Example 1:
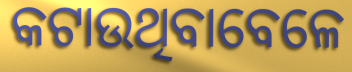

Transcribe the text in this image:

କଟାଉଥିବାବେଳେ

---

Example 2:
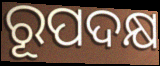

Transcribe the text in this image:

ରୂପଦକ୍ଷ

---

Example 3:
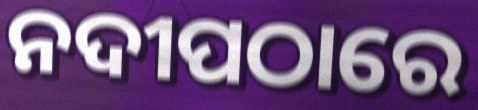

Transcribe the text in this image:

ନଦୀପଠାରେ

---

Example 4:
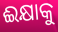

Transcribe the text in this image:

ଈକ୍ଷାକୁ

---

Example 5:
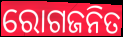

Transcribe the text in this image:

ରୋଗଜନିତ